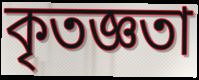
কৃতজ্ঞতা